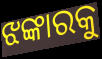
ଝଙ୍କାରକୁ